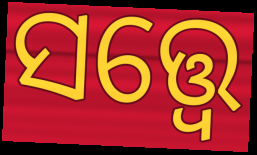
ସତ୍ତ୍ବେ